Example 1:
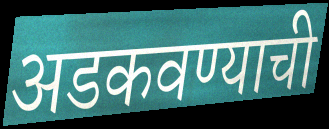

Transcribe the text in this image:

अडकवण्याची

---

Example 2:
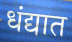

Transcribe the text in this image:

धंद्यात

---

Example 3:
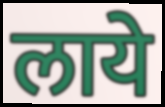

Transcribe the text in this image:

लाये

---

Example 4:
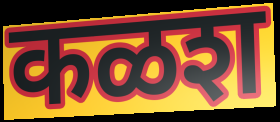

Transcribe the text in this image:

कळश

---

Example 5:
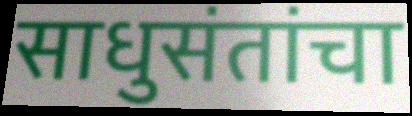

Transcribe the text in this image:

साधुसंतांचा